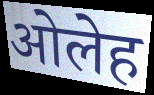
ओलेह